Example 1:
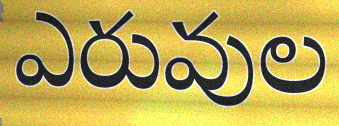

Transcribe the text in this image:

ఎరువుల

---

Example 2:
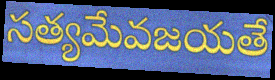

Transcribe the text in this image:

సత్యమేవజయతే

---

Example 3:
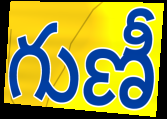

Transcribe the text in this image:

గుణీ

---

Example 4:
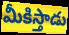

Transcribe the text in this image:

మీకిస్తాడు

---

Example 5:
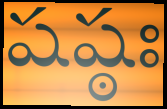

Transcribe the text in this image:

షష్ఠః